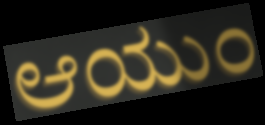
ಆಯುಂ